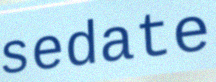
sedate